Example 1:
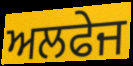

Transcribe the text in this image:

ਅਲਫੇਜ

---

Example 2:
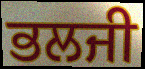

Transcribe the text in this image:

ਭਲਜੀ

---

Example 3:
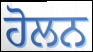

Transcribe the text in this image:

ਹੋਲਨ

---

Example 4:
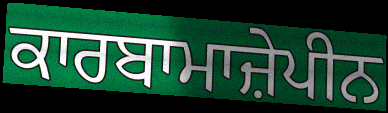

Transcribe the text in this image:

ਕਾਰਬਾਮਾਜ਼ੇਪੀਨ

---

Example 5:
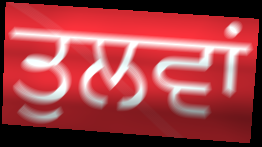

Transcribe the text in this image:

ਤੁਲਵਾਂ